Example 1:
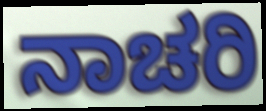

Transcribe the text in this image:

ನಾಚರಿ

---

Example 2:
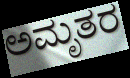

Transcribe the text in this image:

ಅಮೃತರ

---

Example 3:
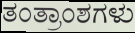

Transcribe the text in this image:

ತಂತ್ರಾಂಶಗಳು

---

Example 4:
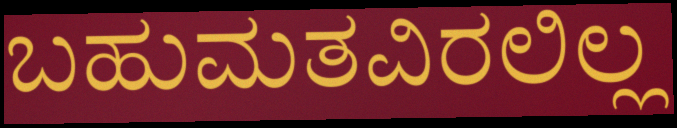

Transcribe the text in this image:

ಬಹುಮತವಿರಲಿಲ್ಲ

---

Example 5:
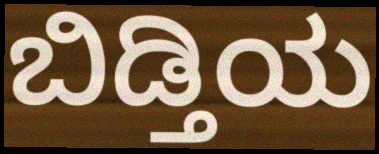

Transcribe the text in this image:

ಬಿಡ್ತಿಯ